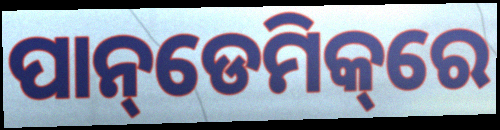
ପାନ୍‌ଡେମିକ୍‌ରେ